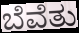
ಬೆವೆತು